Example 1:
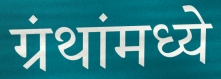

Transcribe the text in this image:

ग्रंथांमध्ये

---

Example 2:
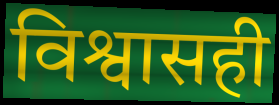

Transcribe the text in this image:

विश्वासही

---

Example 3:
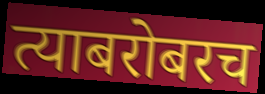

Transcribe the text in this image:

त्याबरोबरच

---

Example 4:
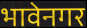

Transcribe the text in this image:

भावेनगर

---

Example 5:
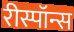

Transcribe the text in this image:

रीस्पॉन्स